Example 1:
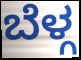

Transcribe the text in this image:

ಬೆಳ್ಗ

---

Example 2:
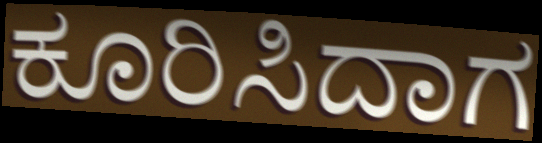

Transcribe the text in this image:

ಕೂರಿಸಿದಾಗ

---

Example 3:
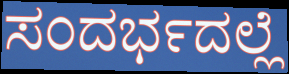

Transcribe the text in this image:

ಸಂದರ್ಭದಲ್ಲೆ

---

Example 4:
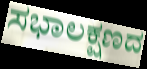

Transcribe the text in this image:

ಸಭಾಲಕ್ಷಣದ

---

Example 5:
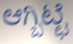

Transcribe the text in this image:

ಆಗ್ಬಿಟ್ಟೆ